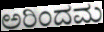
ಅರಿಂದಮ